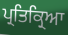
ਪ੍ਰਤਿਕ੍ਰਿਆ